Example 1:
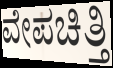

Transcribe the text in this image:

ವೇಪಚಿತ್ತಿ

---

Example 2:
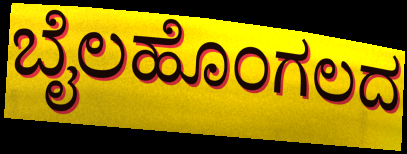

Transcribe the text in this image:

ಬೈಲಹೊಂಗಲದ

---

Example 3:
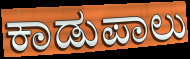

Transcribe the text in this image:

ಕಾಡುಪಾಲು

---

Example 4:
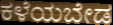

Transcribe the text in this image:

ಕಳೆಯಬೇಡ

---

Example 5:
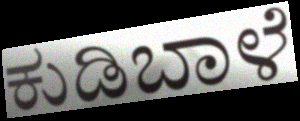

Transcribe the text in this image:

ಕುಡಿಬಾಳೆ